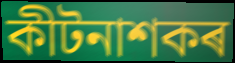
কীটনাশকৰ